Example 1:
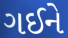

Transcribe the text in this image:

ગઈને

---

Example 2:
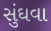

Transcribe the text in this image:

સુંઘવા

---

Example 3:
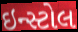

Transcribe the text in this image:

ઇન્સ્ટોલ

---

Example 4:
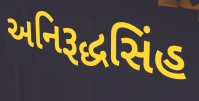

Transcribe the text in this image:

અનિરૂદ્ધસિંહ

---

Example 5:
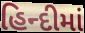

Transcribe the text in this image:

હિન્દીમાં